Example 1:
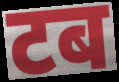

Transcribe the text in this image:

टब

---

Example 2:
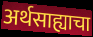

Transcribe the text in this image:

अर्थसाह्याचा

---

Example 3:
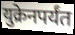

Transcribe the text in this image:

युक्रेनपर्यंत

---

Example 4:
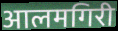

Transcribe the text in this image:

आलमगिरी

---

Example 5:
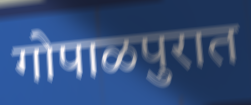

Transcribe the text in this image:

गोपाळपुरात